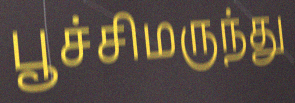
பூச்சிமருந்து